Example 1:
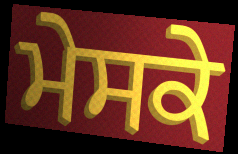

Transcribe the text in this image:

ਮੇਸਕੇ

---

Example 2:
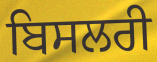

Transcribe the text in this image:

ਬਿਸਲਰੀ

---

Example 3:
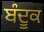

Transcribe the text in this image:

ਬੰਦੂਕ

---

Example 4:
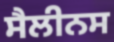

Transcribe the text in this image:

ਸੈਲੀਨਸ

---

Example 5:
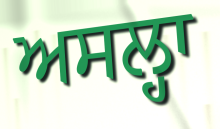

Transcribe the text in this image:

ਅਸਲ੍ਹਾ